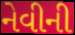
નેવીની